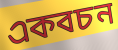
একবচন